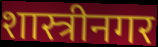
शास्त्रीनगर